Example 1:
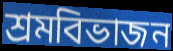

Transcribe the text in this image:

শ্রমবিভাজন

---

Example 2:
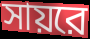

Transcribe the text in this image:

সায়রে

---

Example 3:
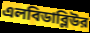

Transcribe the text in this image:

এলবিডাব্লিউর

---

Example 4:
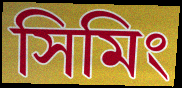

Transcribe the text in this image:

সিমিং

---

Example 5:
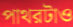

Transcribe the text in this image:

পাথরটাও